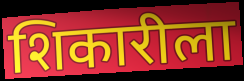
शिकारीला